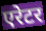
एरेटर